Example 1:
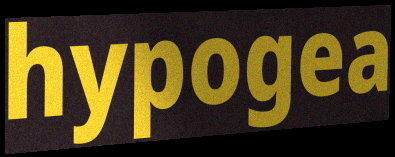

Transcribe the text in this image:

hypogea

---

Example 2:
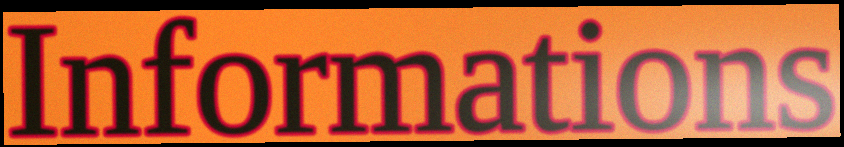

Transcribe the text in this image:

Informations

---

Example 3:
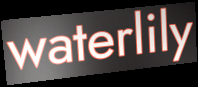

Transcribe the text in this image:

waterlily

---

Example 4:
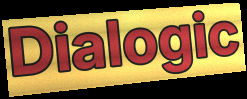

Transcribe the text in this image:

Dialogic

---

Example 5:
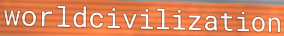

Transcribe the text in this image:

worldcivilization